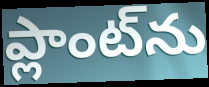
ప్లాంట్‌ను